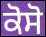
ਕੋਸੋ